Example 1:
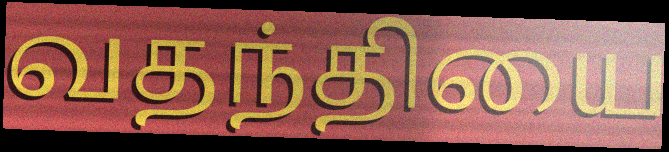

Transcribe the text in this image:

வதந்தியை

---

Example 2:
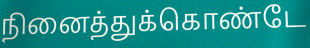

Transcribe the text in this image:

நினைத்துக்கொண்டே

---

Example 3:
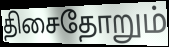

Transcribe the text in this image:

திசைதோறும்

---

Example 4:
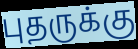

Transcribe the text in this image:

புதருக்கு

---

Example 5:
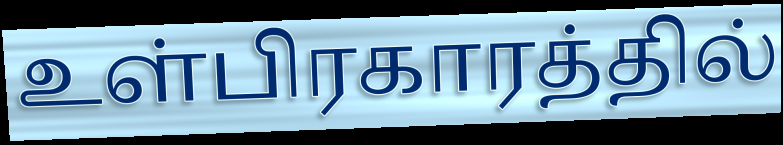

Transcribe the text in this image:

உள்பிரகாரத்தில்